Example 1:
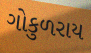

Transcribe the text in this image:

ગોકુળરાય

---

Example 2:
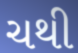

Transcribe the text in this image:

ચથી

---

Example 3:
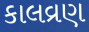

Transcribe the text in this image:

કાલવ્રણ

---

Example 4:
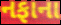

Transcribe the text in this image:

નફાના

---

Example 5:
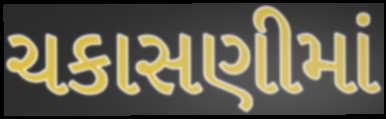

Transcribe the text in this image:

ચકાસણીમાં